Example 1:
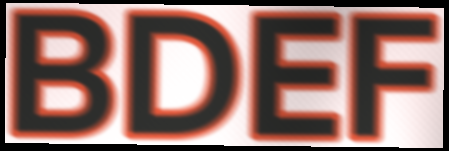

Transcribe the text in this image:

BDEF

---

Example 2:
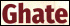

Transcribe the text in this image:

Ghate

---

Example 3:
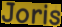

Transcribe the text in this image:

Joris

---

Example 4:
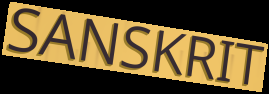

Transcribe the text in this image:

SANSKRIT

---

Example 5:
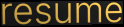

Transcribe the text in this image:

resume